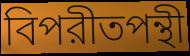
বিপরীতপন্থী